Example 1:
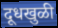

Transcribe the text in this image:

दूधखुळी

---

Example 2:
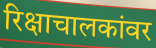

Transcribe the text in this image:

रिक्षाचालकांवर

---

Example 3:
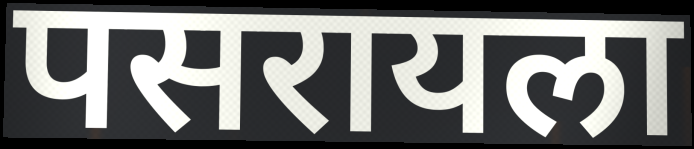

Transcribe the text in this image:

पसरायला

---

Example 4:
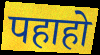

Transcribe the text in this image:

पहाहो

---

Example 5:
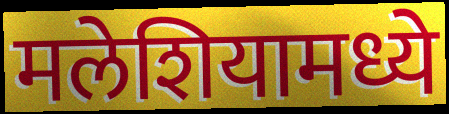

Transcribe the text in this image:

मलेशियामध्ये